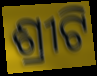
ଶ୍ରୀଟି